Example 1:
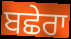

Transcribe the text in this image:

ਬਛੇਰਾ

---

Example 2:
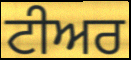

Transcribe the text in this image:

ਟੀਅਰ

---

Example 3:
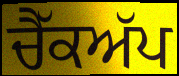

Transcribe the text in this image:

ਚੈੱਕਅੱਪ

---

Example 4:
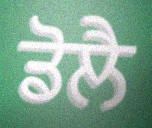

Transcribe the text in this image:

ਡੋਲੈ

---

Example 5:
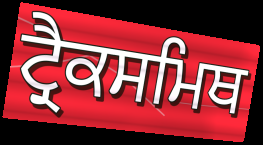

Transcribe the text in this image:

ਟ੍ਰੈਕਸਮਿਥ